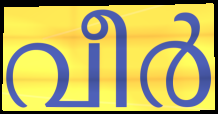
വീർ